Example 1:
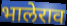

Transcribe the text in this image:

भालेराव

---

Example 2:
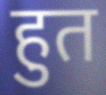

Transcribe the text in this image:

हुत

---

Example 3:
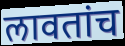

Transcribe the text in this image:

लावतांच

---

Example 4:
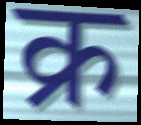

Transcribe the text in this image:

क्र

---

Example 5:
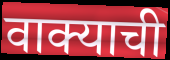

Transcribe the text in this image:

वाक्याची